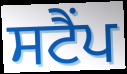
ਸਟੈਂਪ